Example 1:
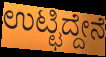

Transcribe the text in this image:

ಉಟ್ಟಿದ್ದೇನೆ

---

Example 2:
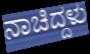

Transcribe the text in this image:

ನಾಚಿದ್ದಳು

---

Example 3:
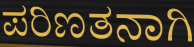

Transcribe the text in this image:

ಪರಿಣತನಾಗಿ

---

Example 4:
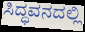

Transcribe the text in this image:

ಸಿದ್ಧವನದಲ್ಲಿ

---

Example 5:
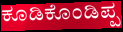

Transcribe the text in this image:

ಕೂಡಿಕೊಂಡಿಪ್ಪ